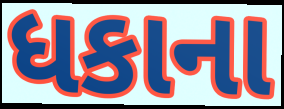
ધકાના